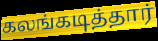
கலங்கடித்தார்